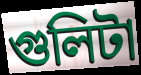
গুলিটা